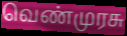
வெண்முரசு